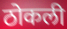
ठोकली